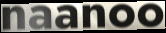
naanoo